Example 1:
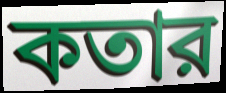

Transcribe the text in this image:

কতার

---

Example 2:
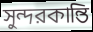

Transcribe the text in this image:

সুন্দরকান্তি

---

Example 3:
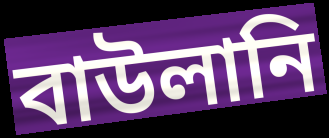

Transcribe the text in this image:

বাউলানি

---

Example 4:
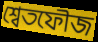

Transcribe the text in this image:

শ্বেতফৌজ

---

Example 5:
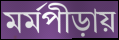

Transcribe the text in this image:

মর্মপীড়ায়